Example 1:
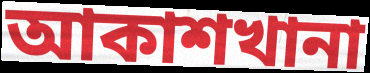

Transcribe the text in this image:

আকাশখানা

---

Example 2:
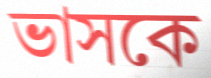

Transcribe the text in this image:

ভাসকে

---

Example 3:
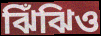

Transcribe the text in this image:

ঝিঁঝিও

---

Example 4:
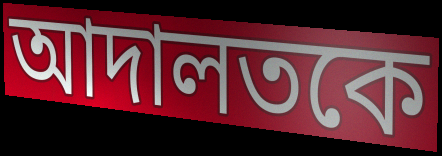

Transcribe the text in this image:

আদালতকে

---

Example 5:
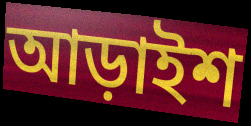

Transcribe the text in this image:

আড়াইশ